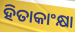
ହିତାକାଂକ୍ଷା